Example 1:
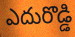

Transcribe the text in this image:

ఎదురొడ్డి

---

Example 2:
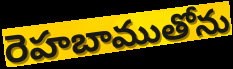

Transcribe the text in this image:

రెహబాముతోను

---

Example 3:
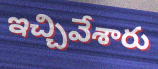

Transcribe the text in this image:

ఇచ్చివేశారు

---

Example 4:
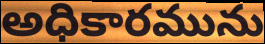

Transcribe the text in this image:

అధికారమును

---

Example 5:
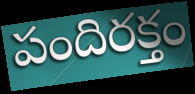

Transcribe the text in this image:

పందిరక్తం